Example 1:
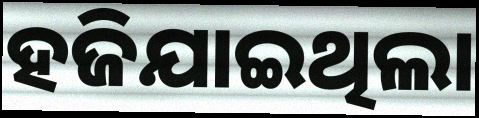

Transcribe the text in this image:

ହଜିଯାଇଥିଲା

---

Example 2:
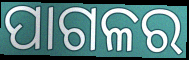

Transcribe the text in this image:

ପାଗଳର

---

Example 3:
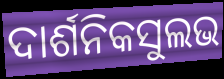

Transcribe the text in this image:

ଦାର୍ଶନିକସୁଲଭ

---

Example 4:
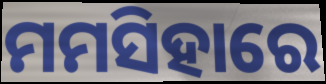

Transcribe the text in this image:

ମମସିହାରେ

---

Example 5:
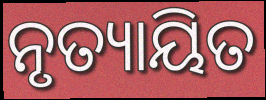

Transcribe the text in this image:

ନୃତ୍ୟାୟିତ